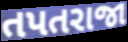
તપતરાજા